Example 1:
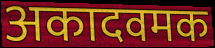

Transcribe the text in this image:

अकादवमक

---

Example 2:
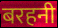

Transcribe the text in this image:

बरहनी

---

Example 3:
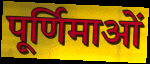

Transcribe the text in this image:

पूर्णिमाओं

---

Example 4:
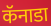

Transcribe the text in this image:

कॅनाडा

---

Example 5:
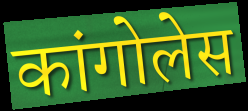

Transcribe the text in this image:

कांगोलेस